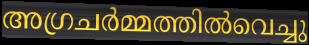
അഗ്രചർമ്മത്തിൽവെച്ചു